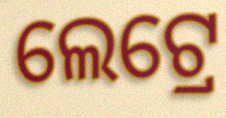
ଲେଟ୍ରେ